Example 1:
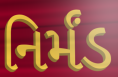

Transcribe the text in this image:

નિર્મંડ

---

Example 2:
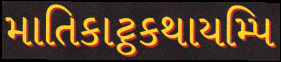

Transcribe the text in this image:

માતિકાટ્ઠકથાયમ્પિ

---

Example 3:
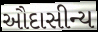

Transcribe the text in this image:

ઔદાસીન્ય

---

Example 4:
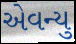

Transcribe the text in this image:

એવન્યુ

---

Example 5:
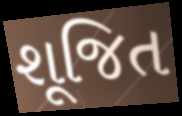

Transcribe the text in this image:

શૂજિત